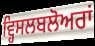
ਵ੍ਹਿਸਲਬਲੋਅਰਾਂ